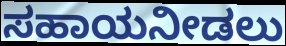
ಸಹಾಯನೀಡಲು